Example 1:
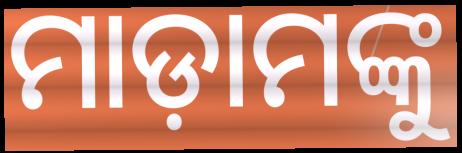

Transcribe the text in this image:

ମାଡ଼ାମଙ୍କୁ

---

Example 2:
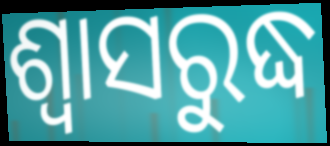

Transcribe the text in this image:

ଶ୍ୱାସରୁଦ୍ଧ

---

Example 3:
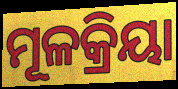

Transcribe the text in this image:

ମୂଳକ୍ରିୟା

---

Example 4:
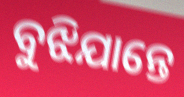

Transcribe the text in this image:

ବୁଝିଯାନ୍ତେ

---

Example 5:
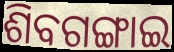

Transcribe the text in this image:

ଶିବଗଙ୍ଗାଇ